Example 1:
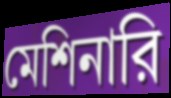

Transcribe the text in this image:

মেশিনারি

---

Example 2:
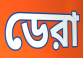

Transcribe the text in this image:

ডেরা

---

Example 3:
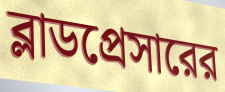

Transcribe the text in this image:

ব্লাডপ্রেসারের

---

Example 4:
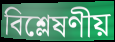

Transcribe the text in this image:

বিশ্লেষণীয়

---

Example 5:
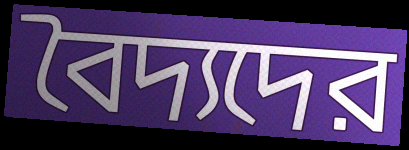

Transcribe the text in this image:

বৈদ্যদের